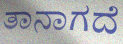
ತಾನಾಗದೆ